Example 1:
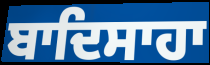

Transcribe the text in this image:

ਬਾਦਿਸਾਹਾ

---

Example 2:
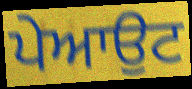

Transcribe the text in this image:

ਪੇਆਉਟ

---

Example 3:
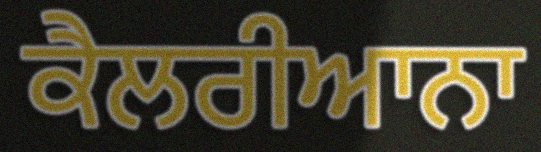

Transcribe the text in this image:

ਕੈਲਰੀਆਨਾ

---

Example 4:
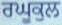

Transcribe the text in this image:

ਰਘੂਕੁਲ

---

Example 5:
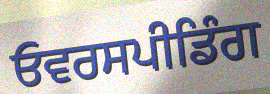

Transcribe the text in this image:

ਓਵਰਸਪੀਡਿੰਗ